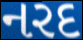
નરદ